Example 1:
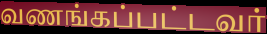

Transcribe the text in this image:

வணங்கப்பட்டவர்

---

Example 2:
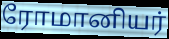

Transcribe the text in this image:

ரோமானியர்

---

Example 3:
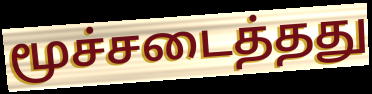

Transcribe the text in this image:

மூச்சடைத்தது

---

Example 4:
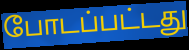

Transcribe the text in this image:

போடப்பட்டது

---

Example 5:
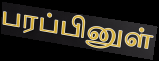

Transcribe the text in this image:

பரப்பினுள்